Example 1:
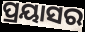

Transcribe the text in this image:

ପ୍ରୟାସର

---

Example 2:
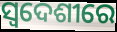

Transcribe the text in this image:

ସ୍ୱଦେଶୀରେ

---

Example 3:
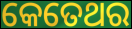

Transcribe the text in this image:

କେତେଥର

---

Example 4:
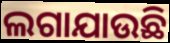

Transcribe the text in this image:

ଲଗାଯାଉଛି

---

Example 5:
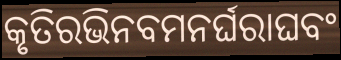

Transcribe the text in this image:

କୃତିରଭିନବମନର୍ଘରାଘବଂ